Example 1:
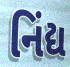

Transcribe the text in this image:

નિંદ્ય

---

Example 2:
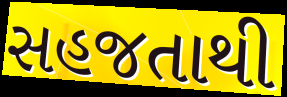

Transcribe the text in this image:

સહજતાથી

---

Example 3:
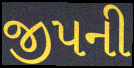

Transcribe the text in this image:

જીપની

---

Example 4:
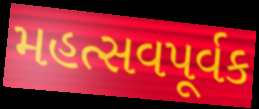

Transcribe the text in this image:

મહત્સવપૂર્વક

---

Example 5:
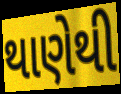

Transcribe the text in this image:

થાણેથી